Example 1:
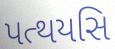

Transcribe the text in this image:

પત્થયસિ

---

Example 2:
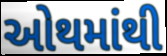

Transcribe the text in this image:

ઓથમાંથી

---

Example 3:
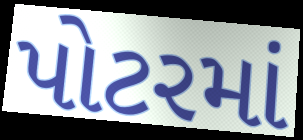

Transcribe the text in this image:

પોટરમાં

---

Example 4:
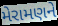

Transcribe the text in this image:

મેરામણને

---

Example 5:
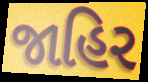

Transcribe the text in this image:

જાહિર